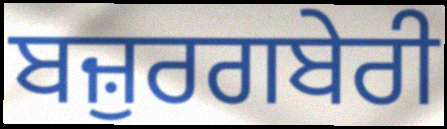
ਬਜ਼ੁਰਗਬੇਰੀ